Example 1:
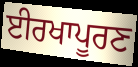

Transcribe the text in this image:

ਈਰਖਾਪੂਰਣ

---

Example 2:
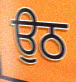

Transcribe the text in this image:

ਉਠ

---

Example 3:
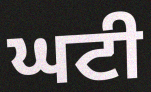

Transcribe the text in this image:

ਘਟੀ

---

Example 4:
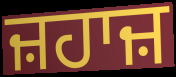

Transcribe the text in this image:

ਜ਼ਹਾਜ਼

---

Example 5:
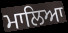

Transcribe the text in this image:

ਮਾਲਿਆ